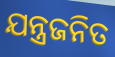
ଯନ୍ତ୍ରଜନିତ